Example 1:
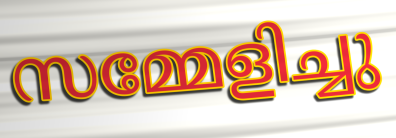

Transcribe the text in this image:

സമ്മേളിച്ചു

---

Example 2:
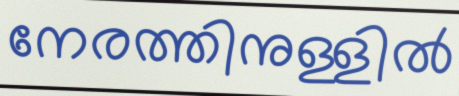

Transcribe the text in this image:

നേരത്തിനുള്ളിൽ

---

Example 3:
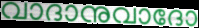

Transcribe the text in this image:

വാദാനുവാദോ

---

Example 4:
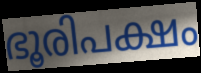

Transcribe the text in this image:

ഭൂരിപക്ഷം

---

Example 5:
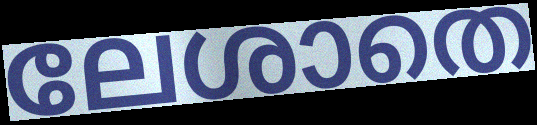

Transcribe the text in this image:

ലേശാതെ